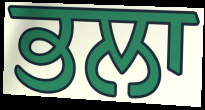
ਭਲਾ